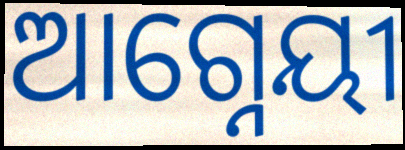
ଆଗ୍ନେୟୀ